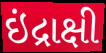
ઇંદ્રાક્ષી